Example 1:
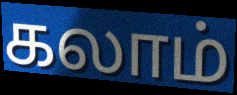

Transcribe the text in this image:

கலாம்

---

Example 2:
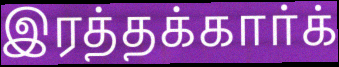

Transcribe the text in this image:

இரத்தக்கார்க்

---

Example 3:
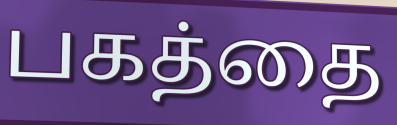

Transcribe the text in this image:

பகத்தை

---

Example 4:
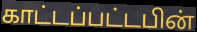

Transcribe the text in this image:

காட்டப்பட்டபின்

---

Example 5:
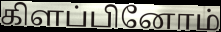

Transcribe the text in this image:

கிளப்பினோம்